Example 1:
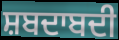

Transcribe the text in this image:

ਸ਼ਬਦਾਬਦੀ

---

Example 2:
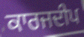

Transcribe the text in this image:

ਕਾਰਜਦੀਪ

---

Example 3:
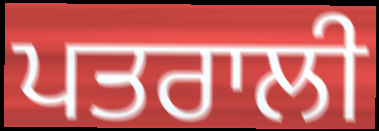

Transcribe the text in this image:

ਪਤਰਾਲੀ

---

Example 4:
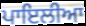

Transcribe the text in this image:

ਪਾਇਲੀਆ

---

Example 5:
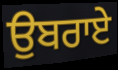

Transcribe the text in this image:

ਉਬਰਾਏ